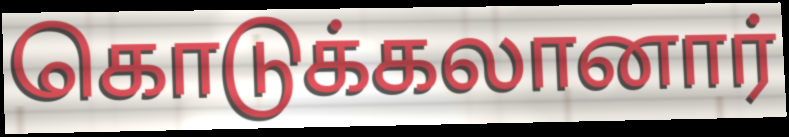
கொடுக்கலானார்